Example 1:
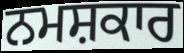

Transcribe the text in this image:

ਨਮਸ਼ਕਾਰ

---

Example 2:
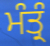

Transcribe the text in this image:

ਮੰਤ੍ਰੰ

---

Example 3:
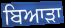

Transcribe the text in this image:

ਬਿਆੜਾ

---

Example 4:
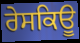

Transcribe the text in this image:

ਰੇਸਕਿਊ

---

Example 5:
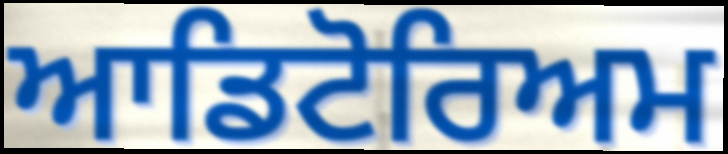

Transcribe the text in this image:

ਆਡਿਟੋਰਿਅਮ